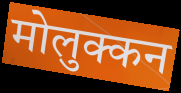
मोलुक्कन